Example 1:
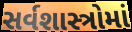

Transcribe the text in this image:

સર્વશાસ્ત્રોમાં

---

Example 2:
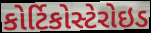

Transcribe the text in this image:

કોર્ટિકોસ્ટેરોઇડ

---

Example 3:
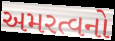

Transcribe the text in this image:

અમરત્વનો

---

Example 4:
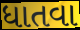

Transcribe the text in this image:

ધાતવા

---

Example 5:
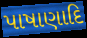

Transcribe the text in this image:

પાષાણાદિ